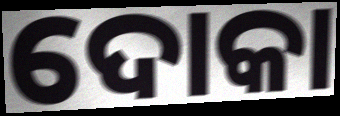
ଦୋକା